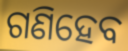
ଗଣିହେବ